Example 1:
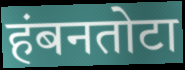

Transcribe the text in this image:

हंबनतोटा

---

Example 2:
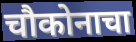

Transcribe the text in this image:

चौकोनाचा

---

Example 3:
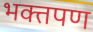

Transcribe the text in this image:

भक्तपण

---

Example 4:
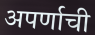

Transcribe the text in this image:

अपर्णाची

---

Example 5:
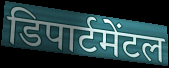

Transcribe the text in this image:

डिपार्टमेंटल